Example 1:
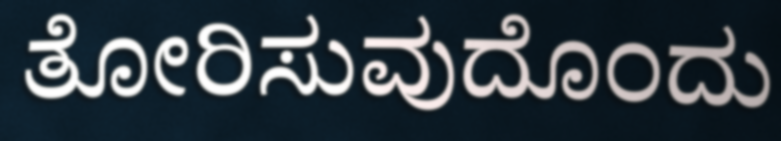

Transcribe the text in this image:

ತೋರಿಸುವುದೊಂದು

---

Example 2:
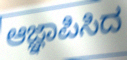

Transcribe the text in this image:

ಆಜ್ಞಾಪಿಸಿದ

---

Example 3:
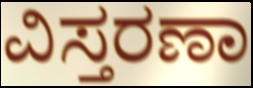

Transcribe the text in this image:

ವಿಸ್ತರಣಾ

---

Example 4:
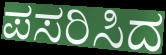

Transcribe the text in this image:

ಪಸರಿಸಿದ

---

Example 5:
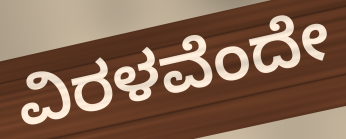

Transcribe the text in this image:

ವಿರಳವೆಂದೇ